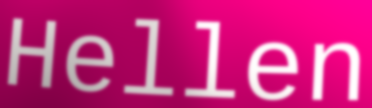
Hellen